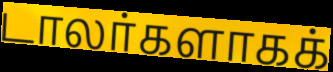
டாலர்களாகக்